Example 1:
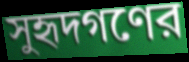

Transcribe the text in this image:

সুহৃদগণের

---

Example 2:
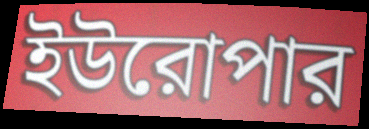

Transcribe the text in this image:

ইউরোপার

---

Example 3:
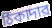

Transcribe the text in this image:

ঠিকাদার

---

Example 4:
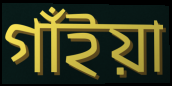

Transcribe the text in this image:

গাঁইয়া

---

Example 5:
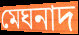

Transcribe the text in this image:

মেঘনাদ